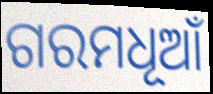
ଗରମଧୂଆଁ